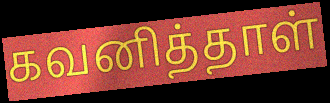
கவனித்தாள்